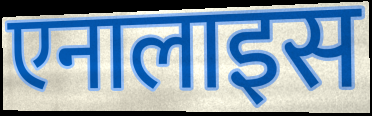
एनालाइस